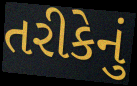
તરીકેનું